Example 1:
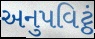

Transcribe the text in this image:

અનુપવિટ્ઠં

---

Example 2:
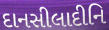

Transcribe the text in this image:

દાનસીલાદીનિ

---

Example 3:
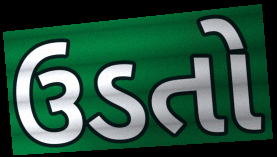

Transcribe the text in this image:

ઉડતો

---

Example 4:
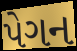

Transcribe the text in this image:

પેગન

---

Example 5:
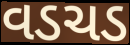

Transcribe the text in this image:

વડચડ